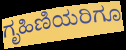
ಗೃಹಿಣಿಯರಿಗೂ